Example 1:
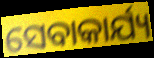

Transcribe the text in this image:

ସେବାକାର୍ଯ୍ୟ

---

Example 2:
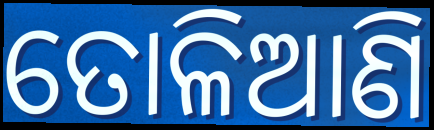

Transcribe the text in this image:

ତୋଳିଆଣି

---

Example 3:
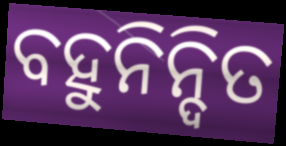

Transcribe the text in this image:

ବହୁନିନ୍ଦିତ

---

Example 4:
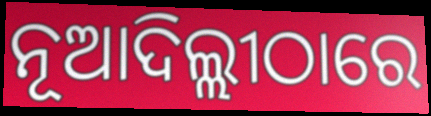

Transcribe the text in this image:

ନୂଆଦିଲ୍ଲୀଠାରେ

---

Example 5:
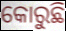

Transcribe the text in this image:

କୋରୁଛି